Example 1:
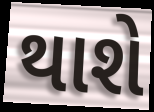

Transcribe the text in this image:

થાશે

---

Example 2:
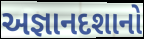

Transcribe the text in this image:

અજ્ઞાનદશાનો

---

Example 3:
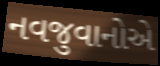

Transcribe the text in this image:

નવજુવાનોએ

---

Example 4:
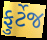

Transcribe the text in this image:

ફુર્ટેજ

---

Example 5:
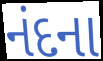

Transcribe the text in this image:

નંદના